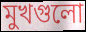
মুখগুলো